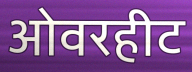
ओवरहीट